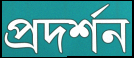
প্ৰদৰ্শন